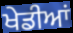
ਖੇਡੀਆਂ